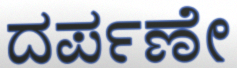
ದರ್ಪಣೇ